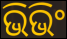
ଭିଭିଂ